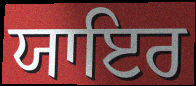
ਯਾਇਰ